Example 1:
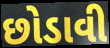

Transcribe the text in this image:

છોડાવી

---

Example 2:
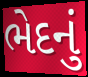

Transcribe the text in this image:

ભેદનું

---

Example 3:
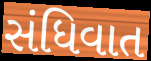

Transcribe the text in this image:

સંધિવાત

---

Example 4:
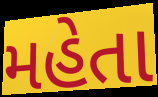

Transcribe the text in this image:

મહેતા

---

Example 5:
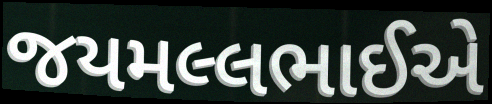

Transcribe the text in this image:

જયમલ્લભાઈએ